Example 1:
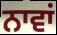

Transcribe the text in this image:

ਨਾਵਾਂ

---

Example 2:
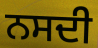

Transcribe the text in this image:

ਨਸਦੀ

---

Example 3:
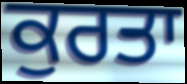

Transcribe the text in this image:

ਕੁਰਤਾ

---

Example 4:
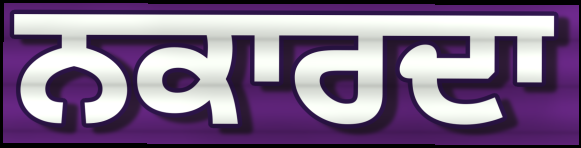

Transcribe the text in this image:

ਨਕਾਰਦਾ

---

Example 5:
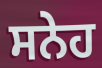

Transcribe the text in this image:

ਸਨੇਹ